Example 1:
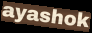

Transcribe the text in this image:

ayashok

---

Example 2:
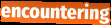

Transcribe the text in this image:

encountering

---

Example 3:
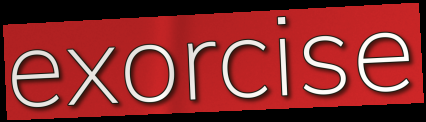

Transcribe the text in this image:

exorcise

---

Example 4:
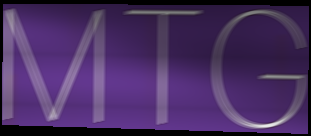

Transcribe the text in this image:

MTG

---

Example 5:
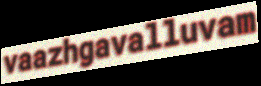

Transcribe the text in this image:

vaazhgavalluvam